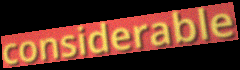
considerable